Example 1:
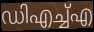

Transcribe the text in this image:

ഡിഎച്ച്എ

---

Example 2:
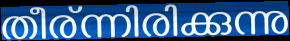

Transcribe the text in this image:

തീര്ന്നിരിക്കുന്നു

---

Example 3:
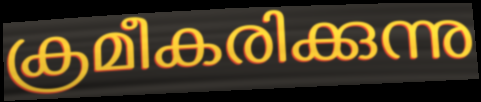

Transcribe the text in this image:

ക്രമീകരിക്കുന്നു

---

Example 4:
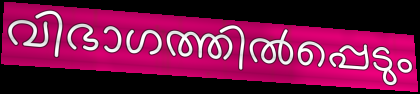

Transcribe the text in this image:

വിഭാഗത്തിൽപ്പെടും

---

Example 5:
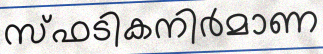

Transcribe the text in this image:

സ്ഫടികനിർമാണ